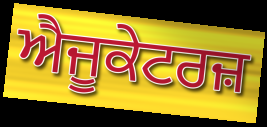
ਐਜੂਕੇਟਰਜ਼